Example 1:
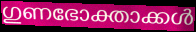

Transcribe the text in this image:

ഗുണഭോക്താക്കൾ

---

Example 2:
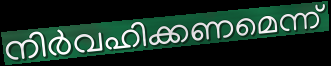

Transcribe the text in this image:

നിർവഹിക്കണമെന്ന്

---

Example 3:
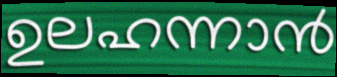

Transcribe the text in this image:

ഉലഹന്നാൻ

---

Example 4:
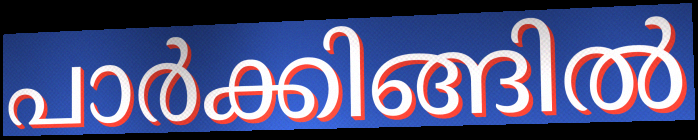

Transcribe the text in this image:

പാർക്കിങ്ങിൽ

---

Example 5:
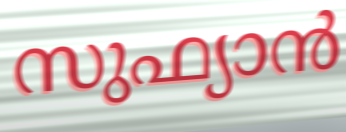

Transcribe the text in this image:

സുഫ്യാൻ